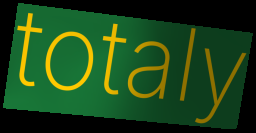
totaly